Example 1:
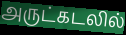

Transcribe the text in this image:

அருட்கடலில்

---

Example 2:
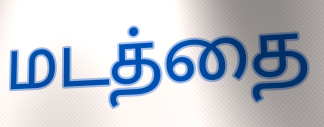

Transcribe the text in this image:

மடத்தை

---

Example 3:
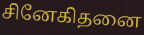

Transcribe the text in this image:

சினேகிதனை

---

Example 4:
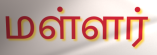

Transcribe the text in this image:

மள்ளர்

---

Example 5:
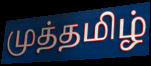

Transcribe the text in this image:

முத்தமிழ்